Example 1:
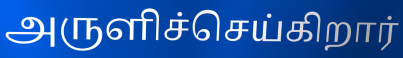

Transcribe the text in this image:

அருளிச்செய்கிறார்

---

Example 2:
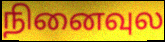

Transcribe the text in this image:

நினைவுல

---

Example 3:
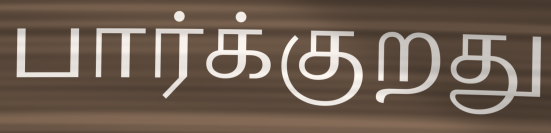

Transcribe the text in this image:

பார்க்குறது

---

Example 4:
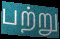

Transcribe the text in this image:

பற்று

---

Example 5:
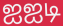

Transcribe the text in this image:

ஐஐடி